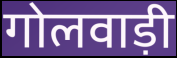
गोलवाड़ी